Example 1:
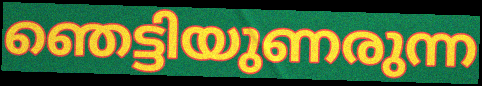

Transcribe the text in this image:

ഞെട്ടിയുണരുന്ന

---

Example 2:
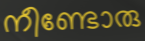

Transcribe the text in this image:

നീണ്ടോരു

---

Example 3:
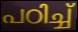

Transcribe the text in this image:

പഠിച്ച്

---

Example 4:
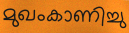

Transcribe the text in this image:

മുഖംകാണിച്ചു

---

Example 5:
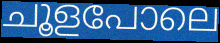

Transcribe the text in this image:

ചൂളപോലെ